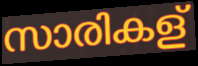
സാരികള്